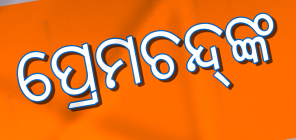
ପ୍ରେମଚନ୍ଦ୍‌ଙ୍କ